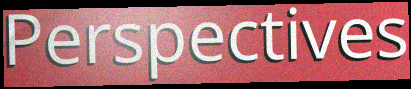
Perspectives